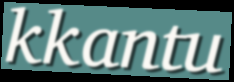
kkantu